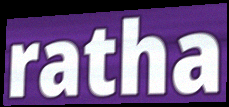
ratha